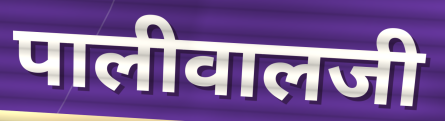
पालीवालजी